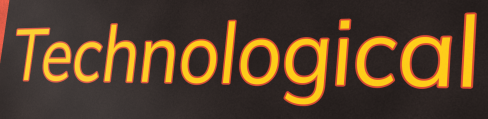
Technological